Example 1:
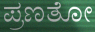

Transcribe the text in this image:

ಪ್ರಣತೋ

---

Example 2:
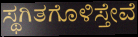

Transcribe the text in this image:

ಸ್ಥಗಿತಗೊಳಿಸ್ತೇವೆ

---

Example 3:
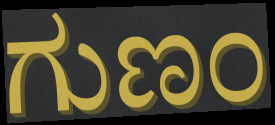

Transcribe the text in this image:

ಗುಣಂ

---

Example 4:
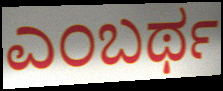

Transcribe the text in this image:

ಎಂಬರ್ಥ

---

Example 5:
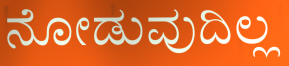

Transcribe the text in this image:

ನೋಡುವುದಿಲ್ಲ